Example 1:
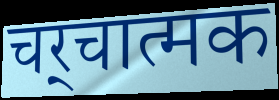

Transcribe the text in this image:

चर्चात्मक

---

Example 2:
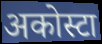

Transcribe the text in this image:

अकोस्टा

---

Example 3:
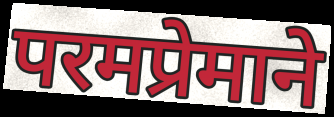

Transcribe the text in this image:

परमप्रेमाने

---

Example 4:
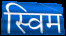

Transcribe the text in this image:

स्विम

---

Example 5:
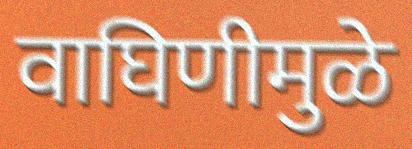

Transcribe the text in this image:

वाघिणीमुळे